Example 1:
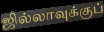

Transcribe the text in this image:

ஜில்லாவுக்குப்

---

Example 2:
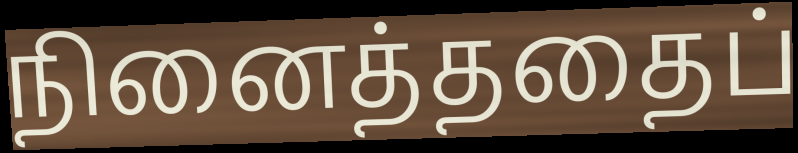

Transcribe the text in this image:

நினைத்ததைப்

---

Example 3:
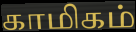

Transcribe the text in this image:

காமிகம்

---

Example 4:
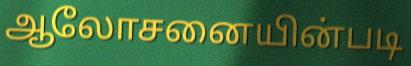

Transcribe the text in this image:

ஆலோசனையின்படி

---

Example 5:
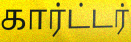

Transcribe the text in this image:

கார்ட்டர்